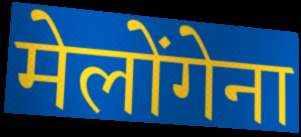
मेलोंगेना